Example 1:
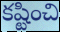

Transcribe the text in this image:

కష్టించి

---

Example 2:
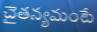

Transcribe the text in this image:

చైతన్యమంటే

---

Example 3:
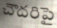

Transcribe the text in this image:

చౌదరిపై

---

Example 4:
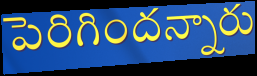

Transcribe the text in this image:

పెరిగిందన్నారు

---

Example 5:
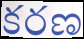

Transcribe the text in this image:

కరణ